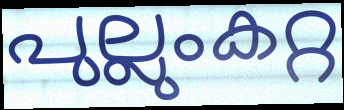
പുല്ലുംകറ്റ